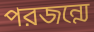
পরজন্মে